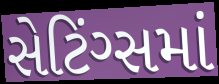
સેટિંગ્સમાં